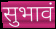
सुभावं